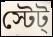
স্টেট্